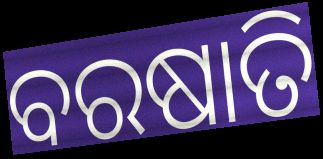
ବରଷାତି